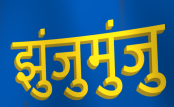
झुंजुमुंजु